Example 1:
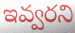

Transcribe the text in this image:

ఇవ్వరని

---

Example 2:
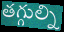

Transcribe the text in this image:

తగ్గుల్ని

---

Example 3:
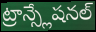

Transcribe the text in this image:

ట్రాన్స్లేషనల్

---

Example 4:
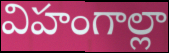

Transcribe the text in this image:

విహంగాల్లా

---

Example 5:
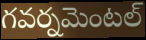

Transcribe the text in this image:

గవర్నమెంటల్